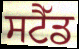
ਸਟੈੱਡ